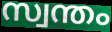
സ്വന്തം